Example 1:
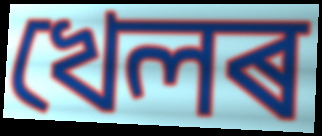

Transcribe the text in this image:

খেলৰ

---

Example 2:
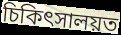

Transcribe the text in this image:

চিকিৎসালয়ত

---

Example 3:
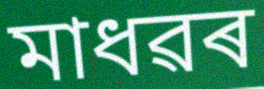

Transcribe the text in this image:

মাধৱৰ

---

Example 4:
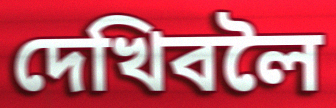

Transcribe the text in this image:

দেখিবলৈ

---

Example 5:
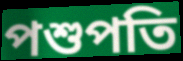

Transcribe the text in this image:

পশুপতি